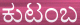
ಕುಟಂಬ